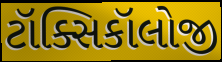
ટૉક્સિકૉલોજી